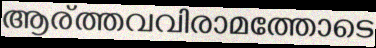
ആര്ത്തവവിരാമത്തോടെ